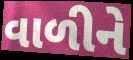
વાળીને